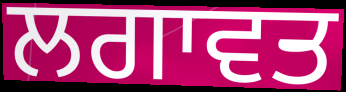
ਲਗਾਵਤ